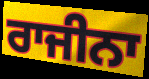
ਰਾਜੀਨਾ